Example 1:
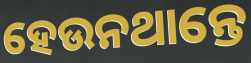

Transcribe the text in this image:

ହେଉନଥାନ୍ତେ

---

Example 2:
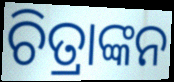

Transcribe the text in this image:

ଚିତ୍ରାଙ୍କନ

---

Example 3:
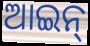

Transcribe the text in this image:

ଆଇନ୍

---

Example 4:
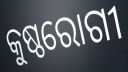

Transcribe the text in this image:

କୁଷ୍ଠରୋଗୀ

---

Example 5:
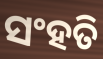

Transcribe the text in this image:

ସଂହତି